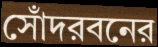
সোঁদরবনের